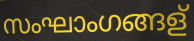
സംഘാംഗങ്ങള്